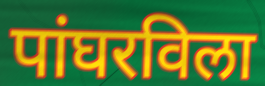
पांघरविला